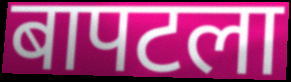
बापटला